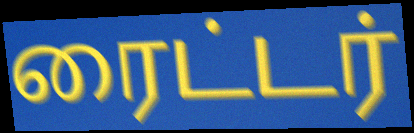
ரைட்டர்